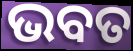
ଭବତ